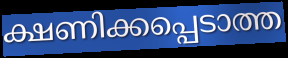
ക്ഷണിക്കപ്പെടാത്ത